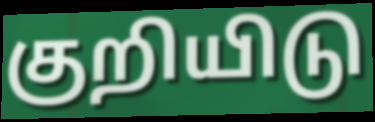
குறியிடு